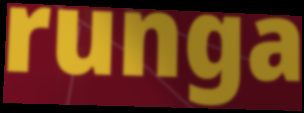
runga